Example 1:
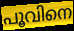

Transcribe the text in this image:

പൂവിനെ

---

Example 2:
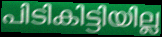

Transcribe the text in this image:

പിടികിട്ടിയില്ല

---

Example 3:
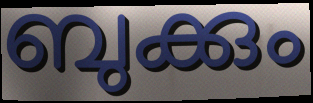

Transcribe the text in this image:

ബുക്കും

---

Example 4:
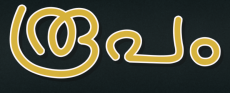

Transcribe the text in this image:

രൂപം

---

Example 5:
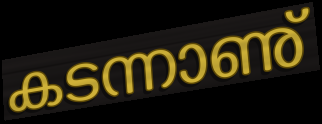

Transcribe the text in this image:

കടന്നാണു്